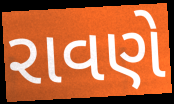
રાવણે